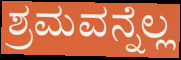
ಶ್ರಮವನ್ನೆಲ್ಲ